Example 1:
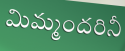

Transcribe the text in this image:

మిమ్మందరినీ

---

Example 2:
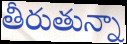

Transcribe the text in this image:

తీరుతున్నా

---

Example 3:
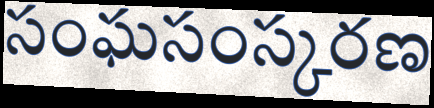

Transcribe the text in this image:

సంఘసంస్కరణ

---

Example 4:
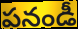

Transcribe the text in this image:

పనండీ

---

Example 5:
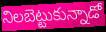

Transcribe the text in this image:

నిలబెట్టుకున్నాడో